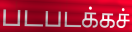
படபடக்கச்